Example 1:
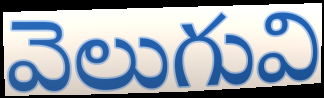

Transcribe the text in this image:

వెలుగువి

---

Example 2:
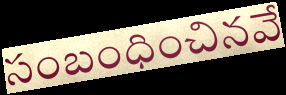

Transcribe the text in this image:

సంబంధించినవే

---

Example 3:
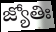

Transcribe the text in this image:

జ్యోతిః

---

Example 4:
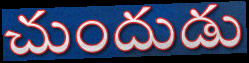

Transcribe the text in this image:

చుందుడు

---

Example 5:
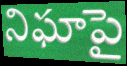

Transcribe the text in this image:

నిఘాపై